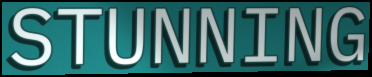
STUNNING